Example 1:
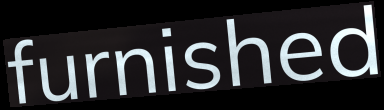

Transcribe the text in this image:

furnished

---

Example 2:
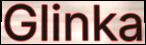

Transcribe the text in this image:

Glinka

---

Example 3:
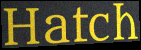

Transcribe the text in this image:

Hatch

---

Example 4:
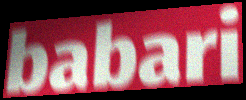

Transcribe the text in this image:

babari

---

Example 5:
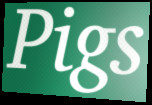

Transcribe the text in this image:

Pigs